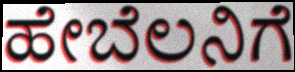
ಹೇಬೆಲನಿಗೆ